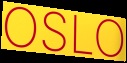
OSLO